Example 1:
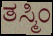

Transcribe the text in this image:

ತಸ್ಮಿಂ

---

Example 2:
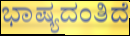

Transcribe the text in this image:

ಭಾಷ್ಯದಂತಿದೆ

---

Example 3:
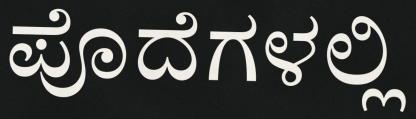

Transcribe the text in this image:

ಪೊದೆಗಳಲ್ಲಿ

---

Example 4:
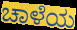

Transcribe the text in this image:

ಚಾಳೆಯ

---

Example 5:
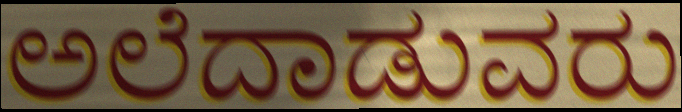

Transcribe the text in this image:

ಅಲೆದಾಡುವರು